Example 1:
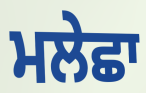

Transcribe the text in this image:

ਮਲੇਛਾ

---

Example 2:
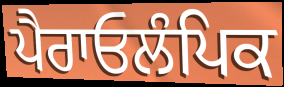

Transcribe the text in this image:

ਪੈਰਾਓਲੰਪਿਕ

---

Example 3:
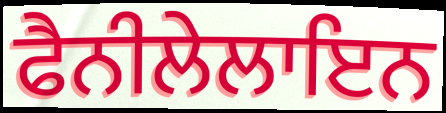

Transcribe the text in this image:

ਫੈਨੀਲੇਲਾਇਨ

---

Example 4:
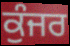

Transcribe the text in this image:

ਕੁੰਜਰ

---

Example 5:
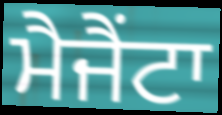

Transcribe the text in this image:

ਮੈਜੈਂਟਾ